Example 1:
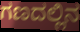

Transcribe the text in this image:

ಗಣದಲ್ಲಿನ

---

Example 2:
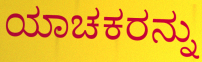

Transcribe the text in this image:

ಯಾಚಕರನ್ನು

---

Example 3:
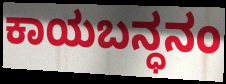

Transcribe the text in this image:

ಕಾಯಬನ್ಧನಂ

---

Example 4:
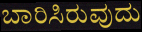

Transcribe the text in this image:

ಬಾರಿಸಿರುವುದು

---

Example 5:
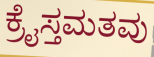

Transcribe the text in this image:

ಕ್ರೈಸ್ತಮತವು